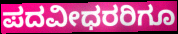
ಪದವೀಧರರಿಗೂ